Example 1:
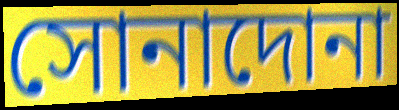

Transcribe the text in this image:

সোনাদোনা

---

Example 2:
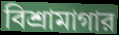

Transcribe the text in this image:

বিশ্রামাগার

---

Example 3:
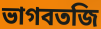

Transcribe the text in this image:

ভাগবতজি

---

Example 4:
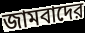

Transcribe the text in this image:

জামবাদের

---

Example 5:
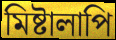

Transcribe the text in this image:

মিষ্টালাপি